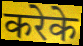
करेके